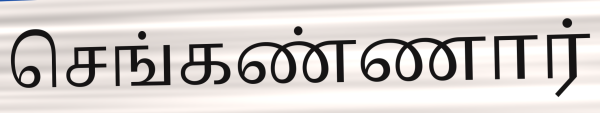
செங்கண்ணார்